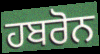
ਹਬਰੋਨ